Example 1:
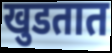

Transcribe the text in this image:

खुडतात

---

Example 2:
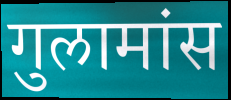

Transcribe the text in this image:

गुलामांस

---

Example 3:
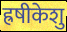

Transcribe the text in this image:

ह्रषीकेशु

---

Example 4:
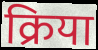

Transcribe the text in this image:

क्रिया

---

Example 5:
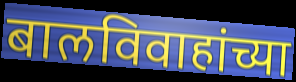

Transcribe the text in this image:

बालविवाहांच्या